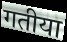
गतीया